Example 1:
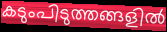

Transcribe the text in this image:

കടുംപിടുത്തങ്ങളിൽ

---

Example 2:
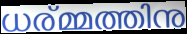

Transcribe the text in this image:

ധര്മ്മത്തിനു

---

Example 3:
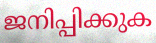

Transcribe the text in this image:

ജനിപ്പിക്കുക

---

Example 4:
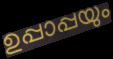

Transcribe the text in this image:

ഉപ്പാപ്പയും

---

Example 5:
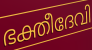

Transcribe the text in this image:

ഭക്തീദേവി